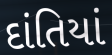
દાંતિયાં